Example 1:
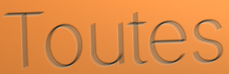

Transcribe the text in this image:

Toutes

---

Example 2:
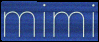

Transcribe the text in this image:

mimi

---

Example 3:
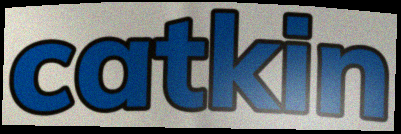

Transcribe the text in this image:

catkin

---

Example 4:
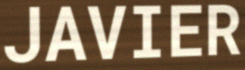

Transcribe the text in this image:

JAVIER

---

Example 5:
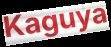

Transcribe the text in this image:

Kaguya